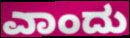
ಎಾಂದು